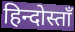
हिन्दोस्ताँ